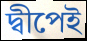
দ্বীপেই